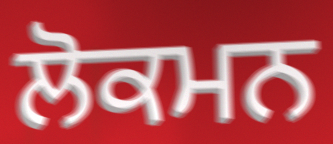
ਲੋਕਮਨ